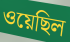
ওয়েছিল